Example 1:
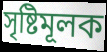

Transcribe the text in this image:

সৃষ্টিমূলক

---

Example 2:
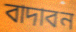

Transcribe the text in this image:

বাদাবন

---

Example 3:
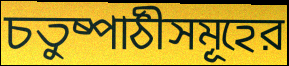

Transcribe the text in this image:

চতুষ্পাঠীসমূহের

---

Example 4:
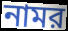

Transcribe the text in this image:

নামর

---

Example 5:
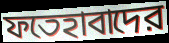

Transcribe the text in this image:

ফতেহাবাদের